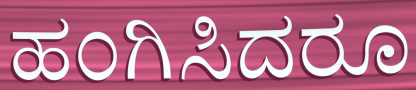
ಹಂಗಿಸಿದರೂ